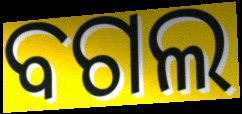
ବଗଲ